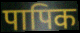
पापिक